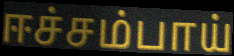
ஈச்சம்பாய்